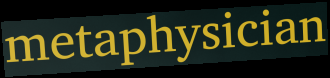
metaphysician